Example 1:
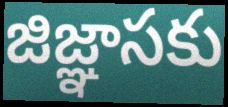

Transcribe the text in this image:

జిజ్ఞాసకు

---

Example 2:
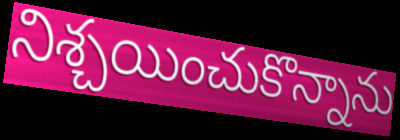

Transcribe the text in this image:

నిశ్చయించుకొన్నాను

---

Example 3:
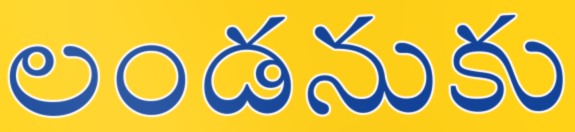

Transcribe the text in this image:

లండనుకు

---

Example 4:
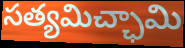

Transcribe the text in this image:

సత్యమిచ్ఛామి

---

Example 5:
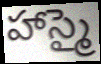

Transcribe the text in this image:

హాస్మై